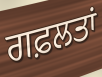
ਗਫ਼ਲਤਾਂ